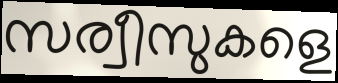
സര്വീസുകളെ